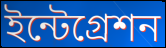
ইন্টেগ্রেশন